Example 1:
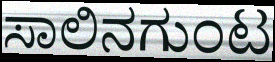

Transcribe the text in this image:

ಸಾಲಿನಗುಂಟ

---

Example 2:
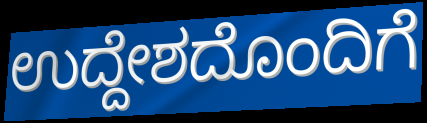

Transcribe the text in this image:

ಉದ್ದೇಶದೊಂದಿಗೆ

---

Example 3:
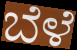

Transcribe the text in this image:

ಬೆಳೆ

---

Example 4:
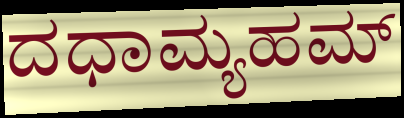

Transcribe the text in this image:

ದಧಾಮ್ಯಹಮ್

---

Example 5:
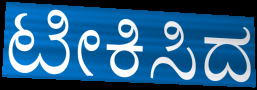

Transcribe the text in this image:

ಟೀಕಿಸಿದ